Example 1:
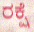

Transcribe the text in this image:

ರಕ್ಷೆ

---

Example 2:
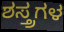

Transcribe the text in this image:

ಶಸ್ತ್ರಗಳ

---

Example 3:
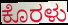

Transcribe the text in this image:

ಕೊರಳು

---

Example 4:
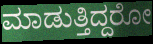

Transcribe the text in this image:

ಮಾಡುತ್ತಿದ್ದರೋ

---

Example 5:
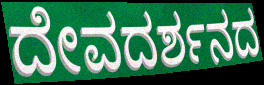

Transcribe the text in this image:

ದೇವದರ್ಶನದ